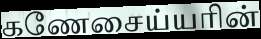
கணேசைய்யரின்